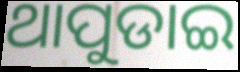
ଥାପୁଡାଇ